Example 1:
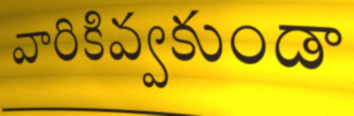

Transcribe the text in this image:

వారికివ్వకుండా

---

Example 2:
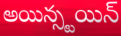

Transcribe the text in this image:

అయిన్స్టయిన్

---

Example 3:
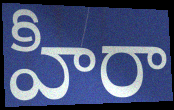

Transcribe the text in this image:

హీరా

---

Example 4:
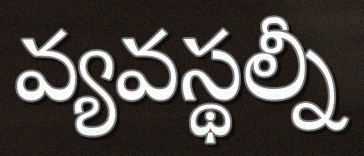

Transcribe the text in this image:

వ్యవస్థల్నీ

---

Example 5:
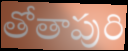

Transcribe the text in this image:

తోతాపురి